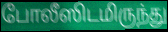
போலீஸிடமிருந்து